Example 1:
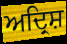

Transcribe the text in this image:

ਅਦ੍ਰਿਸ਼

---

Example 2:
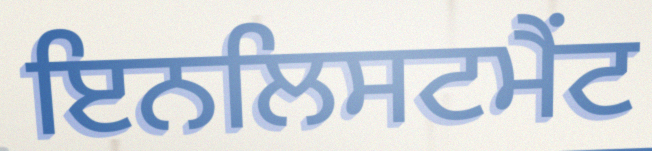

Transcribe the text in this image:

ਇਨਲਿਸਟਮੈਂਟ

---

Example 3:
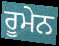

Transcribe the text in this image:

ਰੂਮੇਨ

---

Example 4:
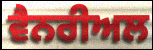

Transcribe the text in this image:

ਵੈਨਰੀਅਲ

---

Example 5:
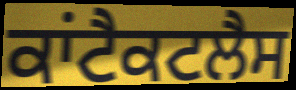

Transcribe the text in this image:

ਕਾਂਟੈਕਟਲੈਸ